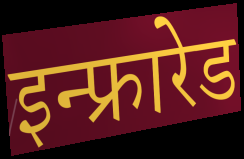
इन्फ्रारेड